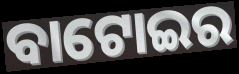
ବାଟୋଇର